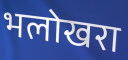
भलोखरा